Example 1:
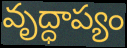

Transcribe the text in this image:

వృద్ధాప్యం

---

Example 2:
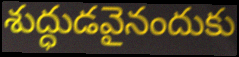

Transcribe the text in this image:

శుద్ధుడవైనందుకు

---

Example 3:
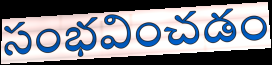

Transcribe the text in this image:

సంభవించడం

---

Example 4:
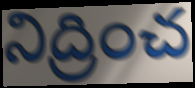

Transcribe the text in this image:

నిద్రించ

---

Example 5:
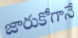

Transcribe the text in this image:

జారుకోగానే